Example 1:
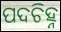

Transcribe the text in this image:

ପଦଚିହ୍ନ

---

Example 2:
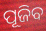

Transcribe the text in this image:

ପୂଜିବ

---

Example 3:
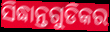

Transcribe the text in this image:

ସିଦ୍ଧାନ୍ତଗୁଡିକର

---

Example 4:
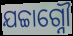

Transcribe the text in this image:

ଯଚ୍ଚାଗ୍ନୌ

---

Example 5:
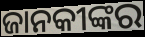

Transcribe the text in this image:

ଜାନକୀଙ୍କର